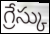
గ్రేస్కు